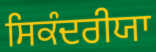
ਸਿਕੰਦਰੀਯਾ